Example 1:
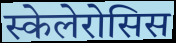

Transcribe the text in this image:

स्केलेरोसिस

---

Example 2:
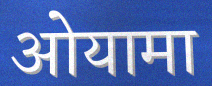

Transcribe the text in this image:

ओयामा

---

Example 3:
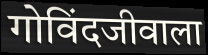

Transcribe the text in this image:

गोविंदजीवाला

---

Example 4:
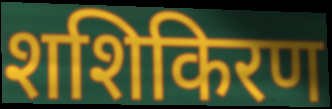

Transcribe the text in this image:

शशिकिरण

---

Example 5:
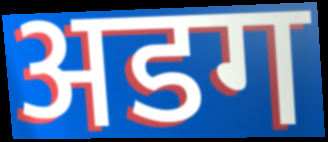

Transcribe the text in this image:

अडग